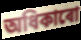
অধিকাৰো